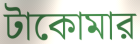
টাকোমার